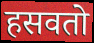
हसवतो